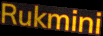
Rukmini